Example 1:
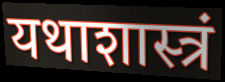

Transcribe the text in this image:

यथाशास्त्रं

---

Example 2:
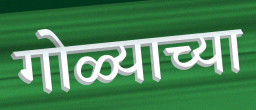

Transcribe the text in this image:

गोळ्याच्या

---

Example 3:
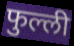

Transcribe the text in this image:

फुल्ली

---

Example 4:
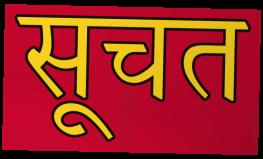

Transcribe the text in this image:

सूचत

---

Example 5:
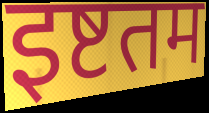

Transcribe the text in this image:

इष्टतम